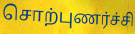
சொற்புணர்ச்சி